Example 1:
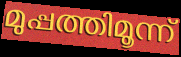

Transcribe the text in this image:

മുപ്പത്തിമൂന്ന്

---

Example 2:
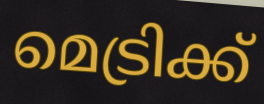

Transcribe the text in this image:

മെട്രിക്ക്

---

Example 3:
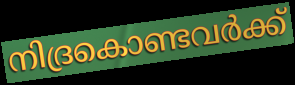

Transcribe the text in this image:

നിദ്രകൊണ്ടവർക്ക്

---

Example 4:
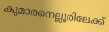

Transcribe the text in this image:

കുമാരനെല്ലൂരിലേക്ക്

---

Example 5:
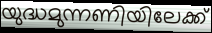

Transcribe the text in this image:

യുദ്ധമുന്നണിയിലേക്ക്